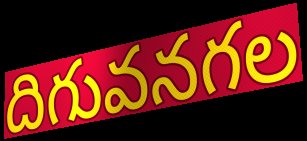
దిగువనగల